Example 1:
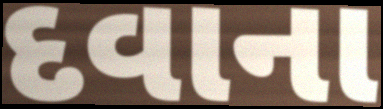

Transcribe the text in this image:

દવાના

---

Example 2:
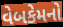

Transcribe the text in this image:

વેબકેમનો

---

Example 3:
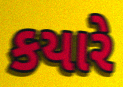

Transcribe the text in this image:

કયારે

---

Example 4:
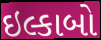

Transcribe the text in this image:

ઇલ્કાબો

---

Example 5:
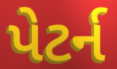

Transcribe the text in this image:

પેટર્ન